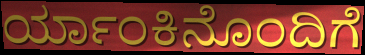
ರ್ಯಾಂಕಿನೊಂದಿಗೆ